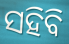
ସହିବି